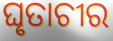
ଘୃତାଚୀର